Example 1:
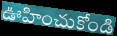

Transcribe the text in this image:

ఊహించుకోండి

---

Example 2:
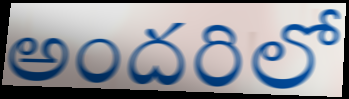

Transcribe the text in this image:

అందరిలో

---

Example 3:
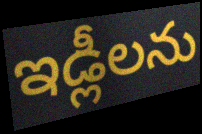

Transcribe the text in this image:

ఇడ్లీలను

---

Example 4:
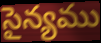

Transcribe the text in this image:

సైన్యము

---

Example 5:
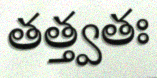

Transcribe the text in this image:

తత్త్వతః